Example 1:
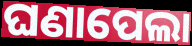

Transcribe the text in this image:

ଘଣାପେଲା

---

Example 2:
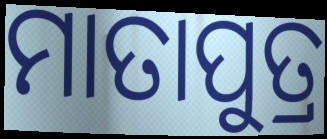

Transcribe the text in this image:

ମାତାପୁତ୍ର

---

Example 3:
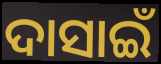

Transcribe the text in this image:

ଦାସାଇଁ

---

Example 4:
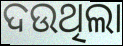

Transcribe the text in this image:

ଦଉଥିଲା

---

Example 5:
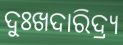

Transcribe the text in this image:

ଦୁଃଖଦାରିଦ୍ର୍ୟ